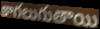
కాగలుగుతాయి